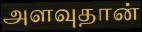
அளவுதான்